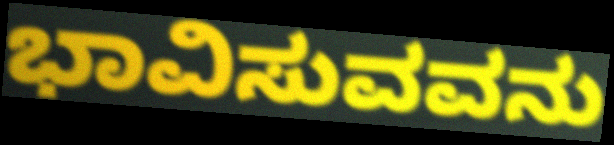
ಭಾವಿಸುವವನು